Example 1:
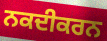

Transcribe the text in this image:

ਨਕਦੀਕਰਨ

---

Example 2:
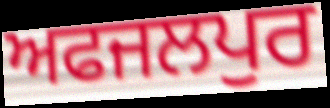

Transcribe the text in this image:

ਅਫਜਲਪੁਰ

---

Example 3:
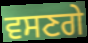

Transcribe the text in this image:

ਵਸਣਗੇ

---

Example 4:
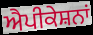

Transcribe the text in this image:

ਐਪੀਕੇਸ਼ਨਾਂ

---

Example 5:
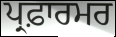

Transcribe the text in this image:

ਪ੍ਰਫ਼ਾਰਮਰ